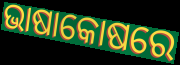
ଭାଷାକୋଷରେ